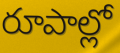
రూపాల్లో